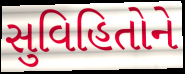
સુવિહિતોને